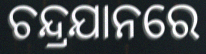
ଚନ୍ଦ୍ରଯାନରେ